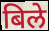
बिले